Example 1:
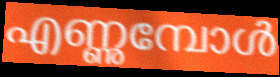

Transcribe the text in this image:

എണ്ണുമ്പോൾ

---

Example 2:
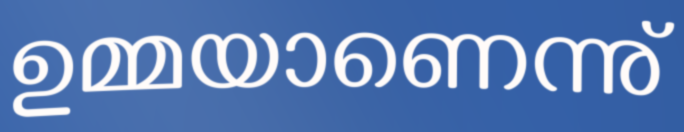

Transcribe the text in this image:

ഉമ്മയാണെന്നു്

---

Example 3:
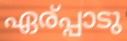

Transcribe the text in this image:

ഏര്പ്പാടു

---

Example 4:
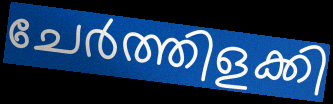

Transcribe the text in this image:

ചേർത്തിളക്കി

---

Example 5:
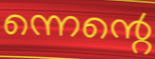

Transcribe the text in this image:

ന്നെന്റെ